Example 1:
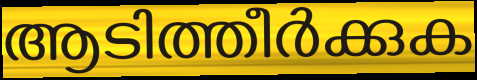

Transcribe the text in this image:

ആടിത്തീർക്കുക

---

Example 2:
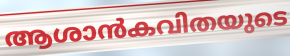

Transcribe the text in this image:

ആശാൻകവിതയുടെ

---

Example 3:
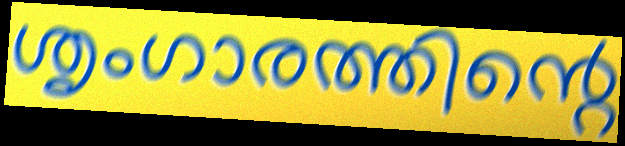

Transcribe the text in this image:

ശൃംഗാരത്തിന്റെ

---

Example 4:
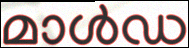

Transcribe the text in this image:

മാൾഡ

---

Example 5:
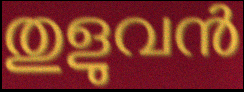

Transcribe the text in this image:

തുളുവൻ